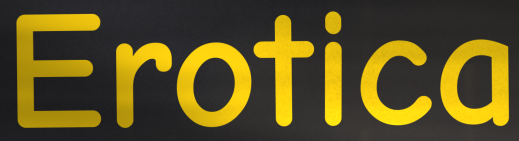
Erotica